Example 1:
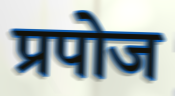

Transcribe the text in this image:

प्रपोज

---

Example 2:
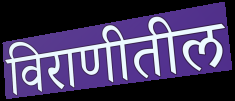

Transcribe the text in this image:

विराणीतील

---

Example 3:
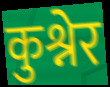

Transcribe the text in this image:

कुश्नेर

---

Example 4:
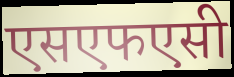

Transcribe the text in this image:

एसएफएसी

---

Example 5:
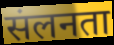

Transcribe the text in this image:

संलनता